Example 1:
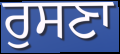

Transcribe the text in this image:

ਰੁਸਣਾ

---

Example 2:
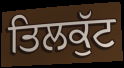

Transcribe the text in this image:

ਤਿਲਕੁੱਟ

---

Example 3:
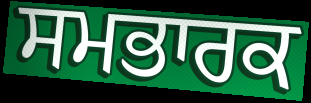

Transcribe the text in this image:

ਸਮਭਾਰਕ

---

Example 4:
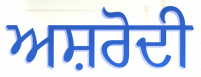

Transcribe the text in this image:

ਅਸ਼ਰੋਦੀ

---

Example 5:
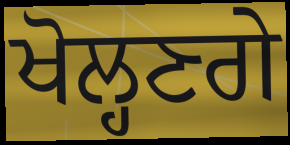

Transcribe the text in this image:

ਖੋਲ੍ਹਣਗੇ